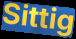
Sittig